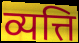
व्यत्ति